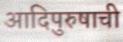
आदिपुरुषाची